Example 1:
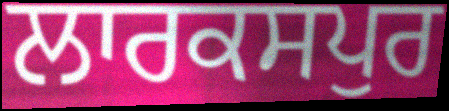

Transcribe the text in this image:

ਲਾਰਕਸਪੁਰ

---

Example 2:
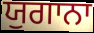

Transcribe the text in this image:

ਯੁਗਾਨਾ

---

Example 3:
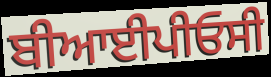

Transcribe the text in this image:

ਬੀਆਈਪੀਓਸੀ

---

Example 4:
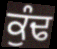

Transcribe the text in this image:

ਕੁੰਢ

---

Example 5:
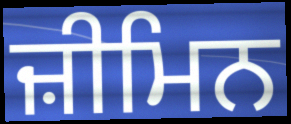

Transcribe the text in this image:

ਜ਼ੀਮਿਨ